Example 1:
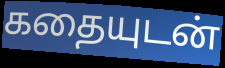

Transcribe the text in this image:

கதையுடன்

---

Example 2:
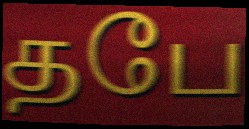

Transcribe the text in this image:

தபே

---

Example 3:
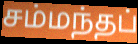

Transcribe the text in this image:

சம்மந்தப்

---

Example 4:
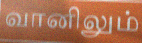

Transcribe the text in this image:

வானிலும்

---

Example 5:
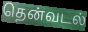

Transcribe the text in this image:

தென்வடல்